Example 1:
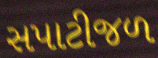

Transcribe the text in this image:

સપાટીજળ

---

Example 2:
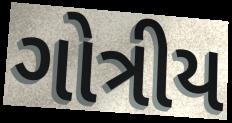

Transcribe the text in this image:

ગોત્રીય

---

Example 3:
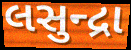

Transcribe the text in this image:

લસુન્દ્રા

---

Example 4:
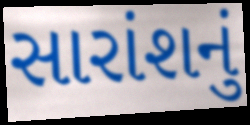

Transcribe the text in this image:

સારાંશનું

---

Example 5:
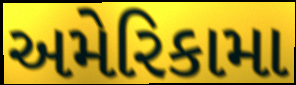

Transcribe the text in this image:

અમેરિકામા